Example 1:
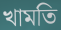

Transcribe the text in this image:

খামতি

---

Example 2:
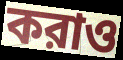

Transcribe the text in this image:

করাও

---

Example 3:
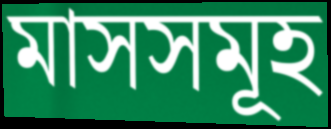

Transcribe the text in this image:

মাসসমূহ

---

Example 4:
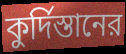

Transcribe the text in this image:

কুর্দিস্তানের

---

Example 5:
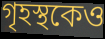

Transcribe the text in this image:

গৃহস্থকেও